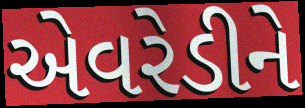
એવરેડીને